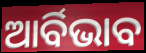
ଆର୍ବିଭାବ